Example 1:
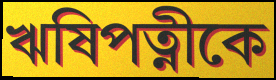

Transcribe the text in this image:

ঋষিপত্নীকে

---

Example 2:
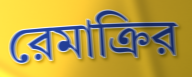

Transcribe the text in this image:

রেমাক্রির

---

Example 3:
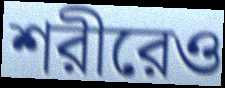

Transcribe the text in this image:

শরীরেও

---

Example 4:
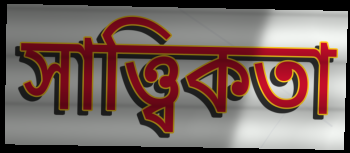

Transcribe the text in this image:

সাত্ত্বিকতা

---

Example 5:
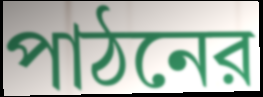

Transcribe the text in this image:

পাঠনের